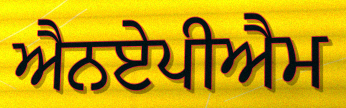
ਐਨਏਪੀਐਮ